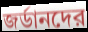
জর্ডানদের